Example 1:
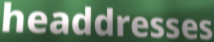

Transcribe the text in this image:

headdresses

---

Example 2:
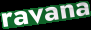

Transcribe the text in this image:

ravana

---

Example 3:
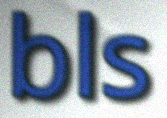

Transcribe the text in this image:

bls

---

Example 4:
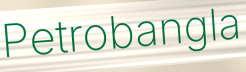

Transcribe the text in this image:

Petrobangla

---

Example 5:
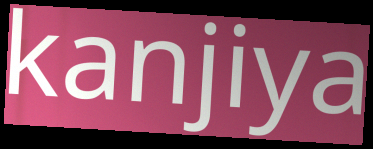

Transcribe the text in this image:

kanjiya